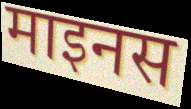
माइनस